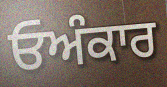
ਓਅੰਕਾਰ